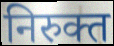
निरुक्त